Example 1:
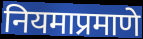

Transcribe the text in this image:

नियमाप्रमाणे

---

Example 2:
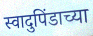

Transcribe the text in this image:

स्वादुपिंडाच्या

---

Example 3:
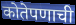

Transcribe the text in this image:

कोतेपणाची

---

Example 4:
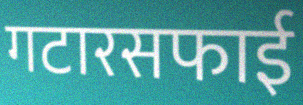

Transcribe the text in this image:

गटारसफाई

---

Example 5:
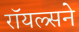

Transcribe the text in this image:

रॉयल्सने